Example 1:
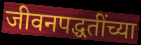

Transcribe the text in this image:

जीवनपद्धतींच्या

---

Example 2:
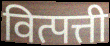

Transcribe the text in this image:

वित्पत्ती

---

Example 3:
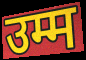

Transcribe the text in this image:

उम्म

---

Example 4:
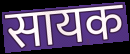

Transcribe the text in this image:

सायक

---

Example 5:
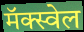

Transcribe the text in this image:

मॅक्स्वेल